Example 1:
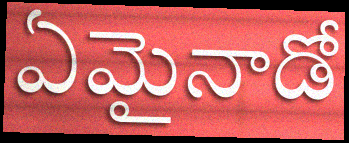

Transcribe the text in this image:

ఏమైనాడో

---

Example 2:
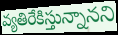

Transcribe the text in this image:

వ్యతిరేకిస్తున్నానని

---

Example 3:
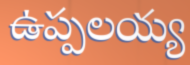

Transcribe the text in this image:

ఉప్పలయ్య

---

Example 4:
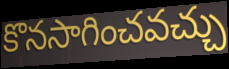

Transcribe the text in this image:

కొనసాగించవచ్చు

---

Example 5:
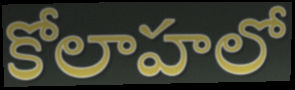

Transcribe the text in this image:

కోలాహలో